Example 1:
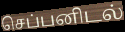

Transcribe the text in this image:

செப்பனிடல்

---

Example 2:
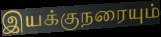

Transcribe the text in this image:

இயக்குநரையும்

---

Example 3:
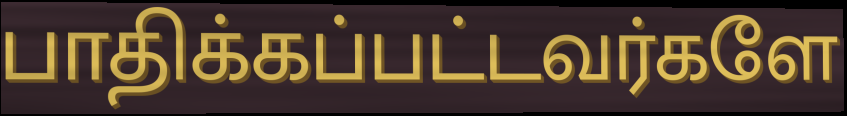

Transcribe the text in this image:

பாதிக்கப்பட்டவர்களே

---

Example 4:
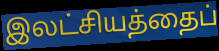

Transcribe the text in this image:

இலட்சியத்தைப்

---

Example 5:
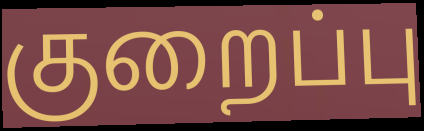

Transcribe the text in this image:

குறைப்பு